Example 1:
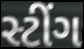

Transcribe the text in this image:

સ્ટીંગ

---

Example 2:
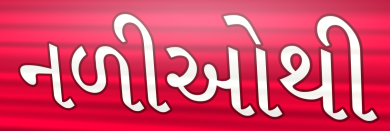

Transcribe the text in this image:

નળીઓથી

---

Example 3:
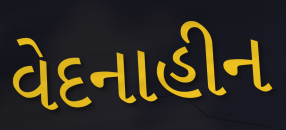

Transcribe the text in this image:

વેદનાહીન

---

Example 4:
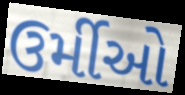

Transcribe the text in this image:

ઉર્મીઓ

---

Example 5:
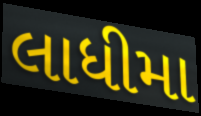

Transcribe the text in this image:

લાધીમા